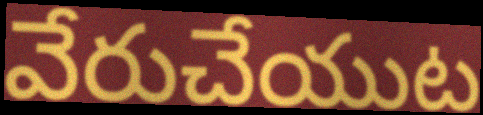
వేరుచేయుట